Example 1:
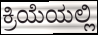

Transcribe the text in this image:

ಕ್ರಿಯೆಯಲ್ಲಿ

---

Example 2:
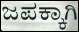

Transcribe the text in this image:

ಜಪಕ್ಕಾಗಿ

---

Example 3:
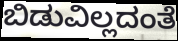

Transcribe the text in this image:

ಬಿಡುವಿಲ್ಲದಂತೆ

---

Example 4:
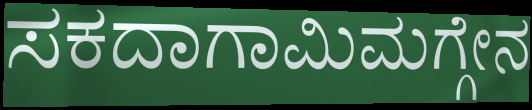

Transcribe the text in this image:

ಸಕದಾಗಾಮಿಮಗ್ಗೇನ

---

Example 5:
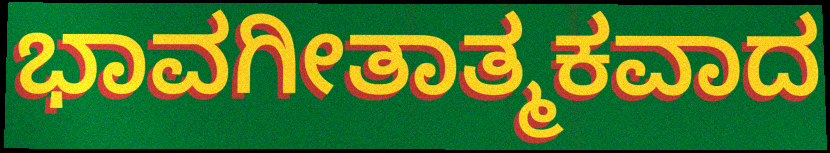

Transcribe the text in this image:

ಭಾವಗೀತಾತ್ಮಕವಾದ